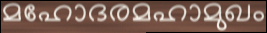
മഹോദരമഹാമുഖം